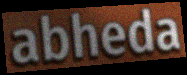
abheda